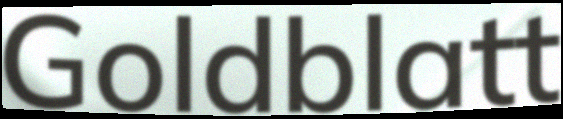
Goldblatt